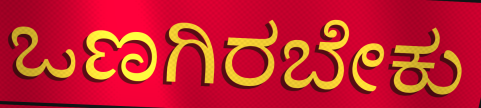
ಒಣಗಿರಬೇಕು